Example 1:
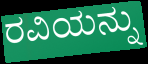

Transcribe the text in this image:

ರವಿಯನ್ನು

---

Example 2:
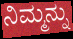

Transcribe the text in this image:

ನಿಮ್ಮನ್ನು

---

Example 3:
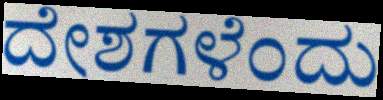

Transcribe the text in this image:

ದೇಶಗಳೆಂದು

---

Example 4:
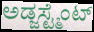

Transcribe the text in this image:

ಅಡ್ಜಸ್ಟ್ಮೆಂಟ್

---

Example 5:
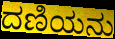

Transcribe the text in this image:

ದಣಿಯನು